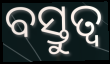
ବସ୍ତୁତ୍ବ